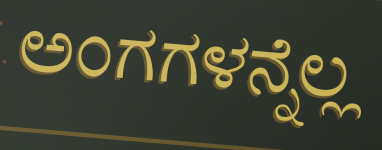
ಅಂಗಗಳನ್ನೆಲ್ಲ